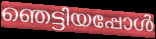
ഞെട്ടിയപ്പോൾ